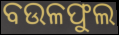
ବଉଳଫୁଲ